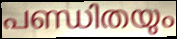
പണ്ഡിതയും